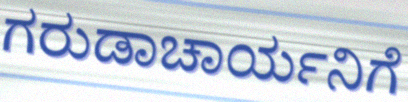
ಗರುಡಾಚಾರ್ಯನಿಗೆ